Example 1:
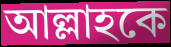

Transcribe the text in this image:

আল্লাহকে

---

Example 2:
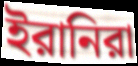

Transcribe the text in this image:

ইরানিরা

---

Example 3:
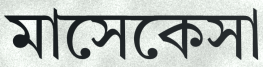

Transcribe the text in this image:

মাসেকেসা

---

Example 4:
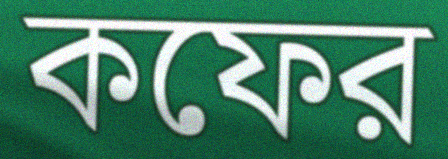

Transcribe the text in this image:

কফের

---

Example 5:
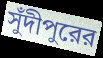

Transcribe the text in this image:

সুঁদীপুরের